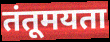
तंतूमयता